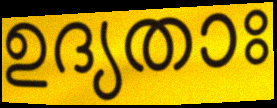
ഉദ്യതാഃ